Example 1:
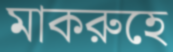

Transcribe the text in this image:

মাকরুহে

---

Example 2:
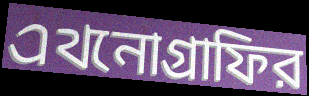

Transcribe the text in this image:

এথনোগ্রাফির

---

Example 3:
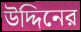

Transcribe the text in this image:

উদ্দিনের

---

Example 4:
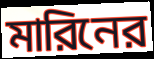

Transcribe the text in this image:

মারিনের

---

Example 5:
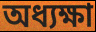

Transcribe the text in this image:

অধ্যক্ষা